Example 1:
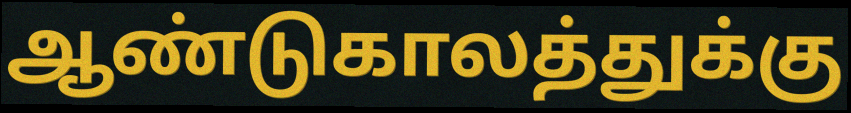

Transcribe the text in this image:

ஆண்டுகாலத்துக்கு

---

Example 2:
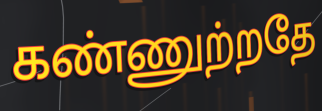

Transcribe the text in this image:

கண்ணுற்றதே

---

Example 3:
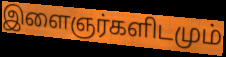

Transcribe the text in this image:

இளைஞர்களிடமும்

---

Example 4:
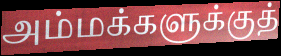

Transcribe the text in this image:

அம்மக்களுக்குத்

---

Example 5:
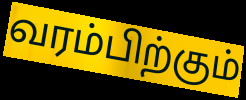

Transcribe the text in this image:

வரம்பிற்கும்